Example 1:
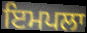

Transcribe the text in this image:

ਇਮਪਲਾ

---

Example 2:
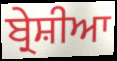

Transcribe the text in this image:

ਬ੍ਰੇਸ਼ੀਆ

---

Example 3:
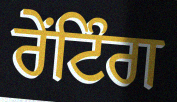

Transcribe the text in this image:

ਰੇਂਟਿੰਗ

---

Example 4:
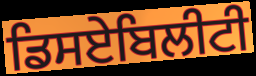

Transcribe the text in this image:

ਡਿਸਏਬਿਲੀਟੀ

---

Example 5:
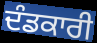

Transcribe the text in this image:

ਦੰਡਕਾਰੀ